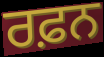
ਰਫ਼ਨ